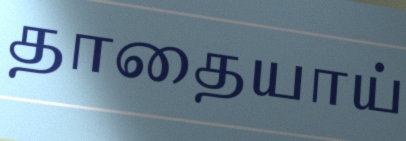
தாதையாய்